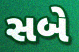
સબે